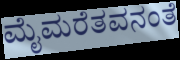
ಮೈಮರೆತವನಂತೆ